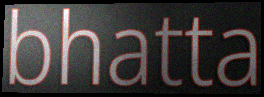
bhatta